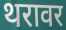
थरावर